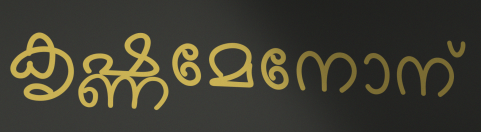
കൃഷ്ണമേനോന്